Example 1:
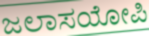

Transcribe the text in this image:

ಜಲಾಸಯೋಪಿ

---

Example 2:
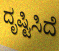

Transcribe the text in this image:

ದೃಷ್ಟಿಸಿದೆ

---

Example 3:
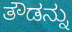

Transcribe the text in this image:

ತೌಡನ್ನು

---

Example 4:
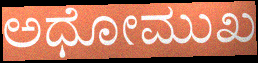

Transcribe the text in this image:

ಅಧೋಮುಖ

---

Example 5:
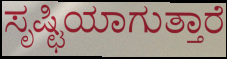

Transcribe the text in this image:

ಸೃಷ್ಟಿಯಾಗುತ್ತಾರೆ